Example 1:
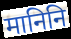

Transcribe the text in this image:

मानिनि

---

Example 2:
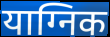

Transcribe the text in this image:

याग्निक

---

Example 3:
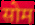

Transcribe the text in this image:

सोम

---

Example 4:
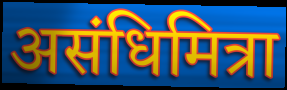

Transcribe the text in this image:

असंधिमित्रा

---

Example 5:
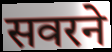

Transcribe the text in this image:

सवरने